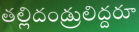
తల్లిదండ్రులిద్దరూ